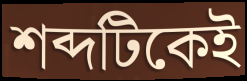
শব্দটিকেই